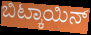
ಬಿಟ್ಕಾಯಿನ್